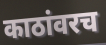
काठांवरच